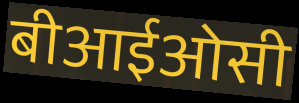
बीआईओसी